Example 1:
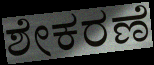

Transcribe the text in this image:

ಶೇಕರಣೆ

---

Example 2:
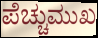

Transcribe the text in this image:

ಪೆಚ್ಚುಮುಖ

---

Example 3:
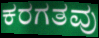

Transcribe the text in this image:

ಕರಗತವು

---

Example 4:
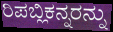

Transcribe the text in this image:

ರಿಪಬ್ಲಿಕನ್ನರನ್ನು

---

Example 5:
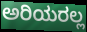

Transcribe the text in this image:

ಅರಿಯರಲ್ಲ